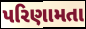
પરિણામતા